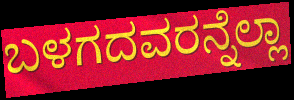
ಬಳಗದವರನ್ನೆಲ್ಲಾ